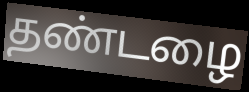
தண்டழை